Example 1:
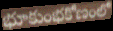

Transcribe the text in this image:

భూకుంభకోణంలో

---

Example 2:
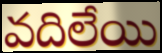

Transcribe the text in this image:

వదిలేయి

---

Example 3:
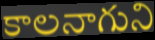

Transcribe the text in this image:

కాలనాగుని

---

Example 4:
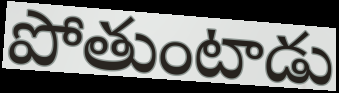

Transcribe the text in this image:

పోతుంటాడు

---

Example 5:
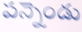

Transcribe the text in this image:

పన్నెండు